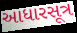
આધારસૂત્ર